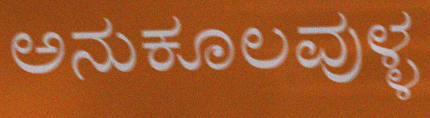
ಅನುಕೂಲವುಳ್ಳ